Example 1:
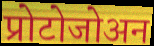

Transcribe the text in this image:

प्रोटोजोअन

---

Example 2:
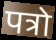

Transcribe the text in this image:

पत्रो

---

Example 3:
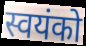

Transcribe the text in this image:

स्वयंको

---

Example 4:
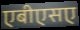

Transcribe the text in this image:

एबीएसए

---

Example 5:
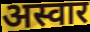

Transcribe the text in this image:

अस्वार